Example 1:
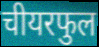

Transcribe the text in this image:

चीयरफुल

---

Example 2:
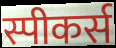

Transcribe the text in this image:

स्पीकर्स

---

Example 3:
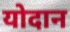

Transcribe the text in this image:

योदान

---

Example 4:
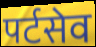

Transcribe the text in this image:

पर्टसेव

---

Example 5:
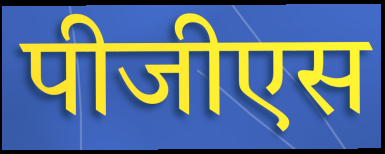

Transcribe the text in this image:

पीजीएस